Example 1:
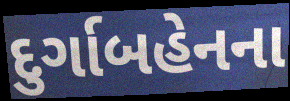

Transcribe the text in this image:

દુર્ગાબહેનના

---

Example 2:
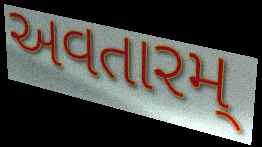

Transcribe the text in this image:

અવતારમ્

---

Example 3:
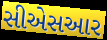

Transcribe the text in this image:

સીએસઆર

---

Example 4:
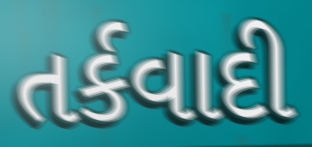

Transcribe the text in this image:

તર્કવાદી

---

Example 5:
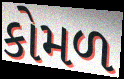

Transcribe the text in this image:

કોમળ